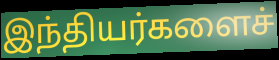
இந்தியர்களைச்